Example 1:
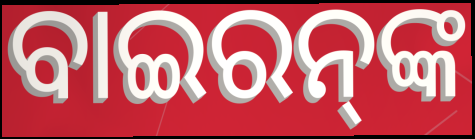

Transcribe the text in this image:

ବାଇରନ୍‌ଙ୍କ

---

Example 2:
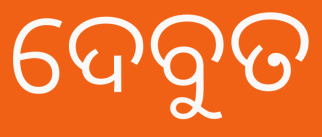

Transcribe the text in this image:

ଦେବୁତ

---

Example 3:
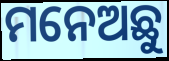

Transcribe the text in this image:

ମନେଅଛୁ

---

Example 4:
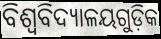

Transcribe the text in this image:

ବିଶ୍ଵବିଦ୍ୟାଳୟଗୁଡ଼ିକ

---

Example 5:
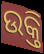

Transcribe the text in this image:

ଉକ୍ତି